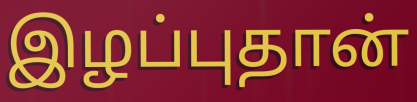
இழப்புதான்